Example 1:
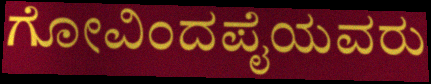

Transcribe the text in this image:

ಗೋವಿಂದಪೈಯವರು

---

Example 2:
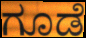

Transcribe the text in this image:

ಗೂಡೆ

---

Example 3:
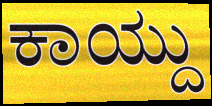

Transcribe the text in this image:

ಕಾಯ್ದು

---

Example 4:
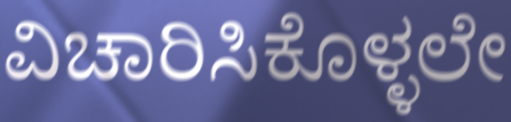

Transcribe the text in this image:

ವಿಚಾರಿಸಿಕೊಳ್ಳಲೇ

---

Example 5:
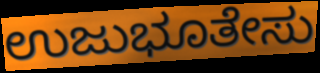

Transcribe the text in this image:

ಉಜುಭೂತೇಸು